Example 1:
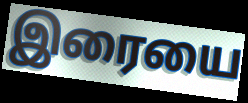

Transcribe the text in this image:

இரையை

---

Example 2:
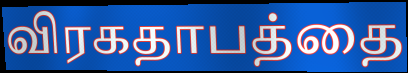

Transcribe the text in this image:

விரகதாபத்தை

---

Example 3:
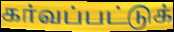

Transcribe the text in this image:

கர்வப்பட்டுக்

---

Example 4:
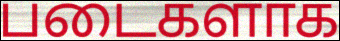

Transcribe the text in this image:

படைகளாக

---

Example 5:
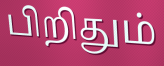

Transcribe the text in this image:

பிறிதும்